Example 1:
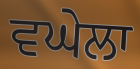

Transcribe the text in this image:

ਵਘੇਲਾ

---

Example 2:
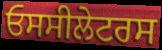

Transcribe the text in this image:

ਓਸਸੀਲੇਟਰਸ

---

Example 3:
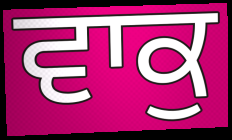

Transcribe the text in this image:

ਵਾਕੁ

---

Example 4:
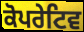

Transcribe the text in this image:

ਕੋਪਰੇਟਿਵ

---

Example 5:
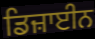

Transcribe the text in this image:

ਡਿਜ਼ਾਈਨ